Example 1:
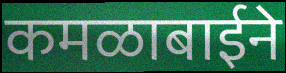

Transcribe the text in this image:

कमळाबाईने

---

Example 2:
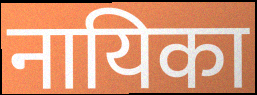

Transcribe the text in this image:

नायिका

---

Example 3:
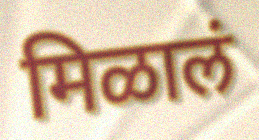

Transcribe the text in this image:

मिळालं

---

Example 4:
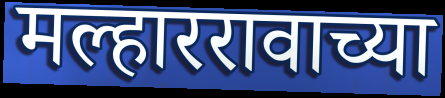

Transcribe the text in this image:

मल्हाररावाच्या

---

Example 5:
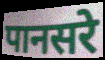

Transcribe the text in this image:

पानसरे